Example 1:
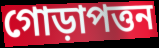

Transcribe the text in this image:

গোড়াপত্তন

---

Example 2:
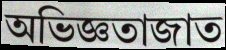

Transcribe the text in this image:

অভিজ্ঞতাজাত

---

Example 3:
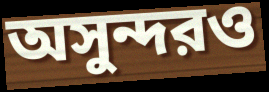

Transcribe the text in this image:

অসুন্দরও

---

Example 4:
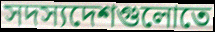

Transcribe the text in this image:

সদস্যদেশগুলোতে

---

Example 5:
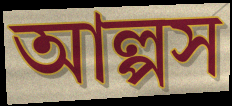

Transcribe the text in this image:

আল্পস